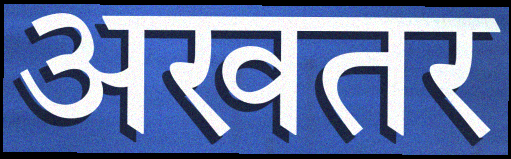
अखतर